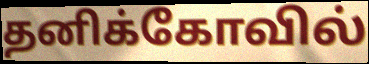
தனிக்கோவில்